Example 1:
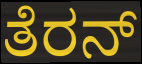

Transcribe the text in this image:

ತೆರನ್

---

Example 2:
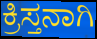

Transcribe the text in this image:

ಕ್ರಿಸ್ತನಾಗಿ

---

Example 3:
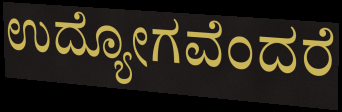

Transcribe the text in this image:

ಉದ್ಯೋಗವೆಂದರೆ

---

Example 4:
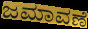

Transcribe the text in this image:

ಜಮಾವಣೆ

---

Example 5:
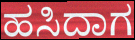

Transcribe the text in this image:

ಹಸಿದಾಗ